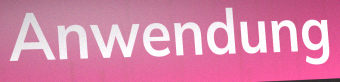
Anwendung